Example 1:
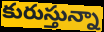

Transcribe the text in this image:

కురుస్తున్నా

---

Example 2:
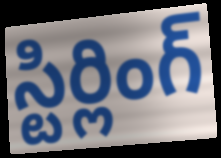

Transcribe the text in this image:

స్టిర్లింగ్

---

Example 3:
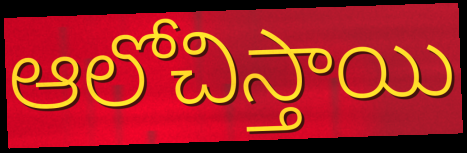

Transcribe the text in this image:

ఆలోచిస్తాయి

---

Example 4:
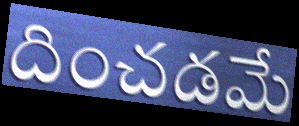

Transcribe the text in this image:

దించడమే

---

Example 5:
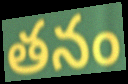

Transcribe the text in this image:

తనం